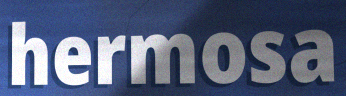
hermosa